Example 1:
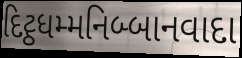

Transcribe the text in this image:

દિટ્ઠધમ્મનિબ્બાનવાદા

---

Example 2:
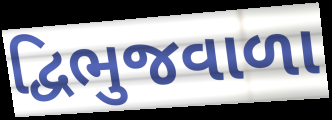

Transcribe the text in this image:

દ્વિભુજવાળા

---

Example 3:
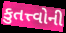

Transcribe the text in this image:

કુતત્ત્વોની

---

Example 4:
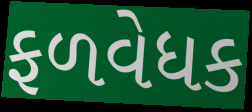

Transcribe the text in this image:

ફળવેધક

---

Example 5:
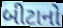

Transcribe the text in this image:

બીટાનો